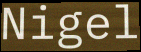
Nigel